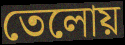
তেলোয়